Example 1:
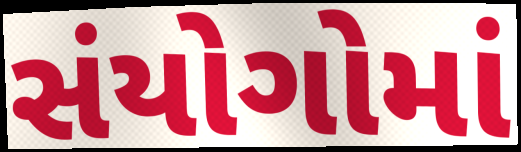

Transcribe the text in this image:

સંયોગોમાં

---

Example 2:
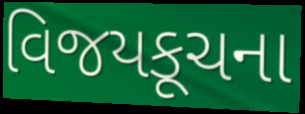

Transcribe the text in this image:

વિજયકૂચના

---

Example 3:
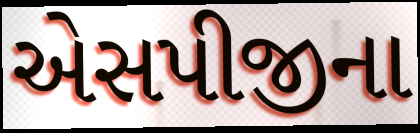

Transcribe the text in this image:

એસપીજીના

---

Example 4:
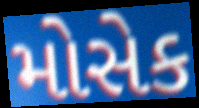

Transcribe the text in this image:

મોસેક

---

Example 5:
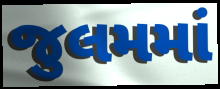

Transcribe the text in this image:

જુલમમાં